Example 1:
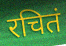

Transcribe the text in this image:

रचितं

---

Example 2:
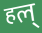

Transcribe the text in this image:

हल्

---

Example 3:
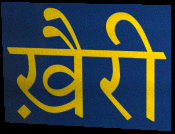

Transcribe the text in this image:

ख़ैरी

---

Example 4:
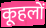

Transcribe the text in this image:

कूहलों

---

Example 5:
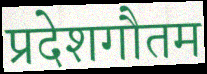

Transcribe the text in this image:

प्रदेशगौतम